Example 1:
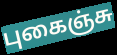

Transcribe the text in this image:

புகைஞ்சு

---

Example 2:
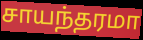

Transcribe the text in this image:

சாயந்தரமா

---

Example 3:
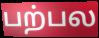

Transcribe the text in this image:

பற்பல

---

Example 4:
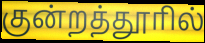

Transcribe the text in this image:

குன்றத்தூரில்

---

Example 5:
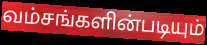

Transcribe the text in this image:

வம்சங்களின்படியும்